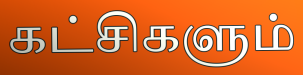
கட்சிகளும்